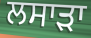
ਲਸਾੜਾ